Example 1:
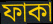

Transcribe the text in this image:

ফাকা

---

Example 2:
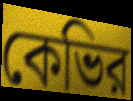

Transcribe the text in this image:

কেভির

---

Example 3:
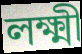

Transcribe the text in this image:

লক্ষ্মী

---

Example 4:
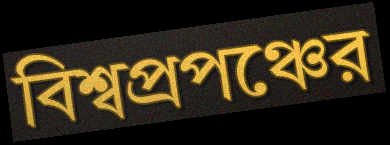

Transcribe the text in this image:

বিশ্বপ্রপঞ্চের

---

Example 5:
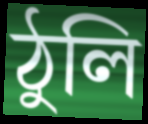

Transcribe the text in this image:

ঠুলি